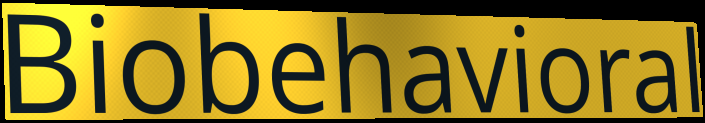
Biobehavioral